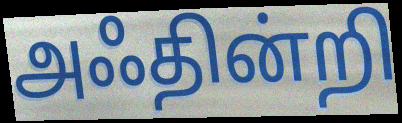
அஃதின்றி